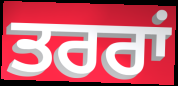
ਤਰਰਾਂ